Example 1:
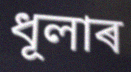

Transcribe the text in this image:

ধূলাৰ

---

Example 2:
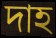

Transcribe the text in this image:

দাহ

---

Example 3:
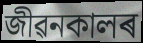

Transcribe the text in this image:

জীৱনকালৰ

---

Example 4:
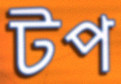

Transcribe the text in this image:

টপ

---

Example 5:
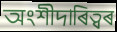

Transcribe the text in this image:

অংশীদাৰিত্বৰ